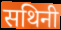
सथिनी